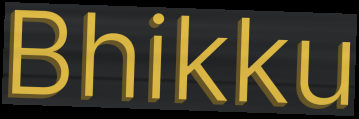
Bhikku